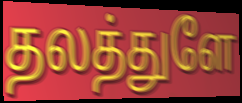
தலத்துளே